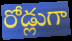
రోడ్లుగా